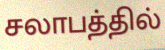
சலாபத்தில்